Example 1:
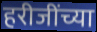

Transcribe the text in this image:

हरीजींच्या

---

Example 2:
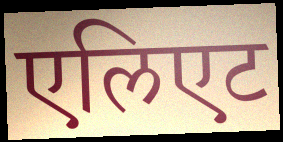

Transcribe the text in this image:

एलिएट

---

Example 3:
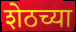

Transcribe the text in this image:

शेठच्या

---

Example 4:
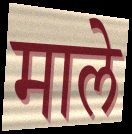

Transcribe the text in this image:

माले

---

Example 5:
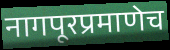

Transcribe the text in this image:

नागपूरप्रमाणेच